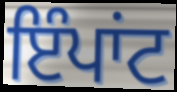
ਇੰਪਾਂਟ